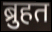
ब्रुहत